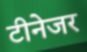
टीनेजर